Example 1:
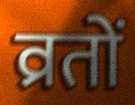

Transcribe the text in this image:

व्रतों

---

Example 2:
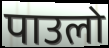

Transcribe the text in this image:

पाउलो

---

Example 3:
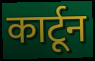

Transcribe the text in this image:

कार्टून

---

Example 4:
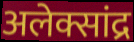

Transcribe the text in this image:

अलेक्सांद्र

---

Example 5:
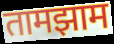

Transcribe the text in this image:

तामझाम